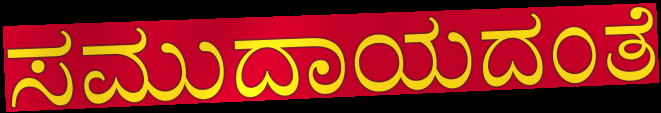
ಸಮುದಾಯದಂತೆ